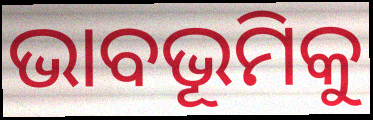
ଭାବଭୂମିକୁ